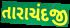
તારાચંદજી